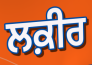
ਲਕ਼ੀਰ